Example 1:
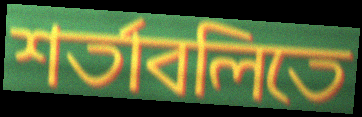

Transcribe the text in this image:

শর্তাবলিতে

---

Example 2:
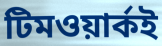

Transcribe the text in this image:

টিমওয়ার্কই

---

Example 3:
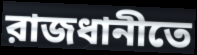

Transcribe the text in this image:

রাজধানীতে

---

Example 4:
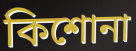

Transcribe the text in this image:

কিশোনা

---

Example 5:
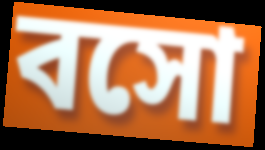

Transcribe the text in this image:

বসো